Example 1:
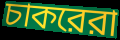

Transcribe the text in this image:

চাকরেরা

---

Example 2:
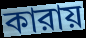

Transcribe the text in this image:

কারায়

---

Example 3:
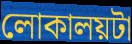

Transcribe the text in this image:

লোকালয়টা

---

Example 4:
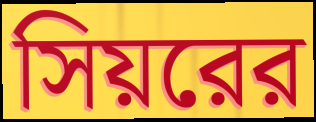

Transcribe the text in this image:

সিয়রের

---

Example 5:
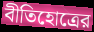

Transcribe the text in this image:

বীতিহোত্রের